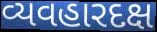
વ્યવહારદક્ષ